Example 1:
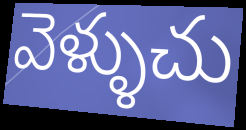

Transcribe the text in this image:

వెళ్ళుచు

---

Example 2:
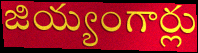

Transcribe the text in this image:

జియ్యంగార్లు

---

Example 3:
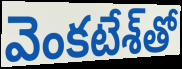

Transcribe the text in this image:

వెంకటేశ్‌తో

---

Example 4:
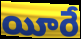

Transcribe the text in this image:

యీరే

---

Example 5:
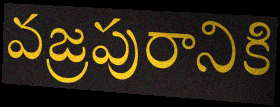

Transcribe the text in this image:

వజ్రపురానికి